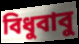
বিধুবাবু